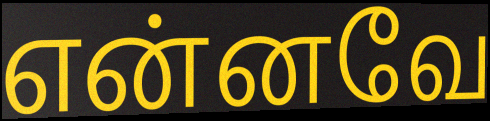
என்னவே